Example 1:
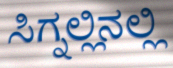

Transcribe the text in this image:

ಸಿಗ್ನಲ್ಲಿನಲ್ಲಿ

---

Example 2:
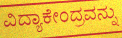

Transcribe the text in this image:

ವಿದ್ಯಾಕೇಂದ್ರವನ್ನು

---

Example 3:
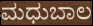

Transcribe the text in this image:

ಮಧುಬಾಲ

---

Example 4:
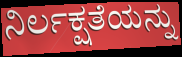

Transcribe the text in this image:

ನಿರ್ಲಕ್ಷತೆಯನ್ನು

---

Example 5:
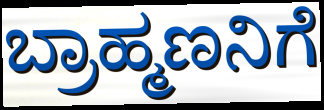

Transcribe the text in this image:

ಬ್ರಾಹ್ಮಣನಿಗೆ